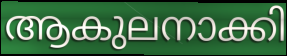
ആകുലനാക്കി